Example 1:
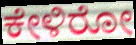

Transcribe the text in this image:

ಕೇಳಿರೋ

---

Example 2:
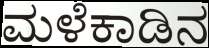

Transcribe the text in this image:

ಮಳೆಕಾಡಿನ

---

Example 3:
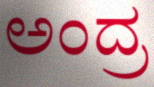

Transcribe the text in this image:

ಅಂದ್ರ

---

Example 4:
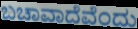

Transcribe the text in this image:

ಬಚಾವಾದೆವೆಂದು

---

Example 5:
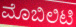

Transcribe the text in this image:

ಮೊಬಿಲಿಟಿ